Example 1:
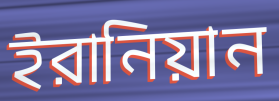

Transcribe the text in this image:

ইরানিয়ান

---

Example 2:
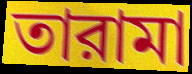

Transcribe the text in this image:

তারামা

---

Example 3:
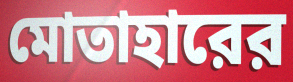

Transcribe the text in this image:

মোতাহারের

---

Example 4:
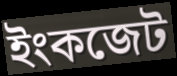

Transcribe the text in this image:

ইংকজেট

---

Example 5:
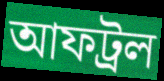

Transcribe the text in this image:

আফট্রল